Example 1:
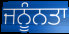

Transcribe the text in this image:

ਜਨੂੰਨਤਾ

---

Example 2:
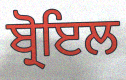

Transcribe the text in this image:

ਬ੍ਰੋਇਲ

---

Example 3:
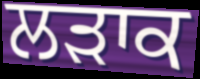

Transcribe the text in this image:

ਲੜਾਕ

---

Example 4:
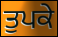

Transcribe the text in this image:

ਤੁਪਕੇ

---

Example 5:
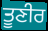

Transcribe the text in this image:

ਤੂਣੀਰ